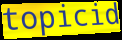
topicid